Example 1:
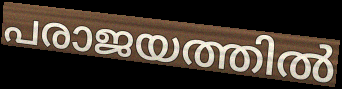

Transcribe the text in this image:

പരാജയത്തിൽ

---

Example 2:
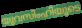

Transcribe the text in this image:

യുവസിംഹിയുടെ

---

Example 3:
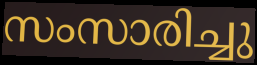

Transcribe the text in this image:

സംസാരിച്ചു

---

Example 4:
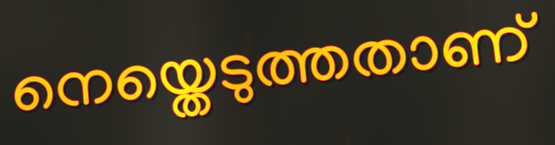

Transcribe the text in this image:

നെയ്തെടുത്തതാണ്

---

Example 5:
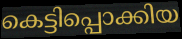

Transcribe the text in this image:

കെട്ടിപ്പൊക്കിയ